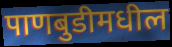
पाणबुडीमधील